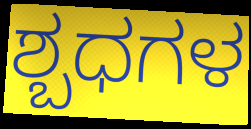
ಶ್ಬಧಗಳ